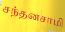
சந்தனசாமி